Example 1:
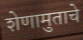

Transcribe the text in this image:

शेणामुताचे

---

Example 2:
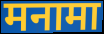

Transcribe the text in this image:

मनामा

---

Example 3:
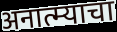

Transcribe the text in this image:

अनात्म्याचा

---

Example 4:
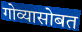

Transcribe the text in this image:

गोव्यासोबत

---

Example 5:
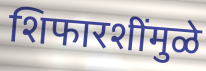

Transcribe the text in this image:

शिफारशींमुळे